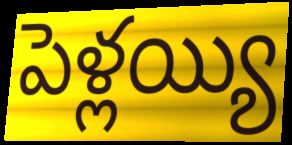
పెళ్లయ్యి